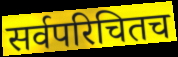
सर्वपरिचितच